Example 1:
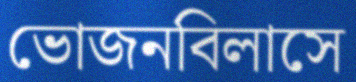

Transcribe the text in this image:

ভোজনবিলাসে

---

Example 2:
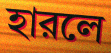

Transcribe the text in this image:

হারলে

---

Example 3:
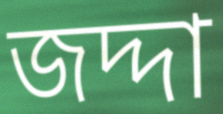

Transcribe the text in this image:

জদ্দা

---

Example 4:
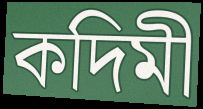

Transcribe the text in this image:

কদিমী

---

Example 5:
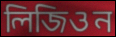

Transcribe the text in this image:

লিজিওন